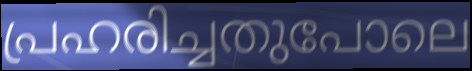
പ്രഹരിച്ചതുപോലെ